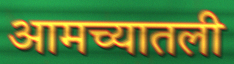
आमच्यातली